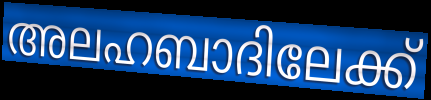
അലഹബാദിലേക്ക്